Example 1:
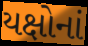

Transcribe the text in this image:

યક્ષોનાં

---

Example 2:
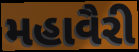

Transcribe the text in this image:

મહાવૈરી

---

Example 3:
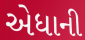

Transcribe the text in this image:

એધાની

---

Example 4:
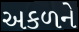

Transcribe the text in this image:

અકળને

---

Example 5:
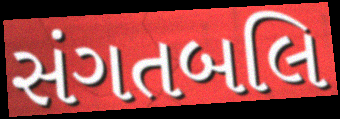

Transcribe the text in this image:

સંગતબલિ